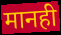
मानही